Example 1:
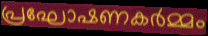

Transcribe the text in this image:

പ്രഘോഷണകർമ്മം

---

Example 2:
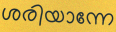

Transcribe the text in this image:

ശരിയാന്നേ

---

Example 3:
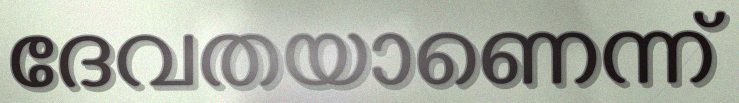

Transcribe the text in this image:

ദേവതയാണെന്ന്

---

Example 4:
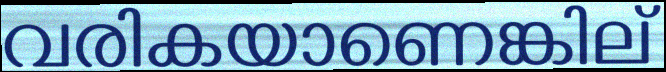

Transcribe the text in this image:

വരികയാണെങ്കില്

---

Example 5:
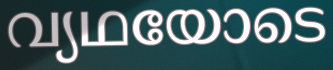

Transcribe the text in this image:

വ്യഥയോടെ